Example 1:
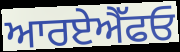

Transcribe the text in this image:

ਆਰਏਐੱਫਓ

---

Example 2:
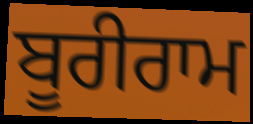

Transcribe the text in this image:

ਬੂਰੀਰਾਮ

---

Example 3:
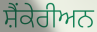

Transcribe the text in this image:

ਸ਼ੈਂਕੇਰੀਅਨ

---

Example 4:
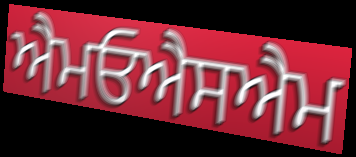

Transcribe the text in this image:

ਐਮਓਐਸਐਮ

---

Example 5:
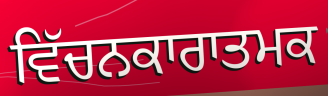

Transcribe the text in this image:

ਵਿੱਚਨਕਾਰਾਤਮਕ